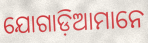
ଯୋଗାଡ଼ିଆମାନେ